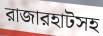
রাজারহাটসহ